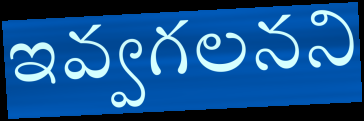
ఇవ్వగలనని